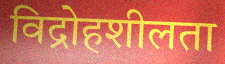
विद्रोहशीलता